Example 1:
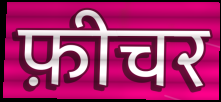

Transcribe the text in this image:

फ़ीचर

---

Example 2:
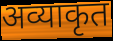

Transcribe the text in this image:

अव्याकृत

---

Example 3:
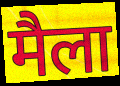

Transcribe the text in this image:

मैला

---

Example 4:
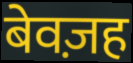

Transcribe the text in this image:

बेवज़ह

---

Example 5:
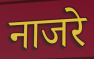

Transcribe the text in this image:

नाजरे